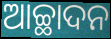
ଆଚ୍ଛାଦନ